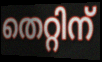
തെറ്റിന്